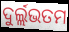
ଦୁର୍ଲ୍ଲଭତମ